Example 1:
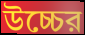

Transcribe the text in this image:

উচ্চের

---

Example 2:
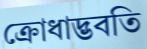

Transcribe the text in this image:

ক্রোধাদ্ভবতি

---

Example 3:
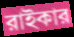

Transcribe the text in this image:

রাইকার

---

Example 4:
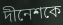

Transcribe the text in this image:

দীনেশকে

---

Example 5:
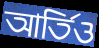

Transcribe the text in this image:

আর্তিও